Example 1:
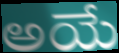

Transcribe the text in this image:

అయే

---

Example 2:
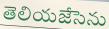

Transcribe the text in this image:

తెలియజేసెను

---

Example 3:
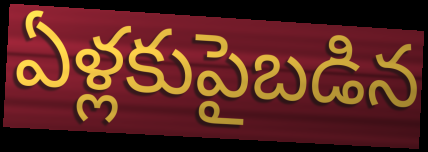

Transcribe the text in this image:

ఏళ్లకుపైబడిన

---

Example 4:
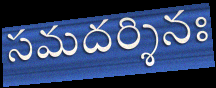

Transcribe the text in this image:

సమదర్శినః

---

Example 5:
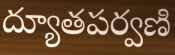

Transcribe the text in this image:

ద్యూతపర్వణి